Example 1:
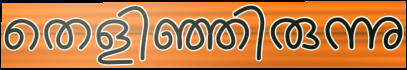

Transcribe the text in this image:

തെളിഞ്ഞിരുന്നു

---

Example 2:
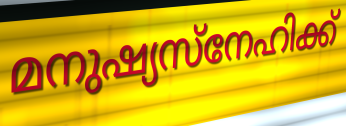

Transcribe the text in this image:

മനുഷ്യസ്നേഹിക്ക്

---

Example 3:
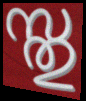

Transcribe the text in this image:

സ്തു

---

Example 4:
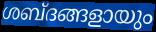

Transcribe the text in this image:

ശബ്ദങ്ങളായും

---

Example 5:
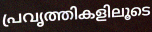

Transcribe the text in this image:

പ്രവൃത്തികളിലൂടെ